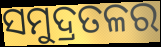
ସମୁଦ୍ରତଳର